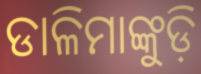
ଡାଳିମାଙ୍କୁଡ଼ି